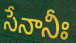
సేనానీః